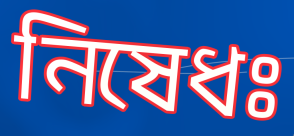
নিষেধঃ